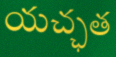
యచ్ఛత